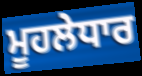
ਮੂਹਲੇਧਾਰ